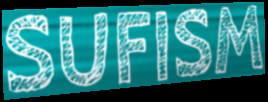
SUFISM